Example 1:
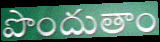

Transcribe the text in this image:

పొందుతాం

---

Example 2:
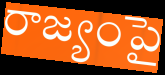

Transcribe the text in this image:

రాజ్యంపై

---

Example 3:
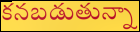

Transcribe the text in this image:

కనబడుతున్నా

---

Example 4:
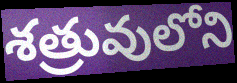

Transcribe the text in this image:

శత్రువులోని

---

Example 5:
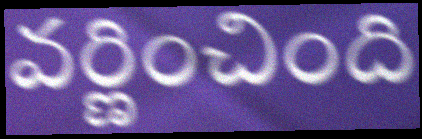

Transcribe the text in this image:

వర్ణించింది